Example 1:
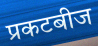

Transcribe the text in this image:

प्रकटबीज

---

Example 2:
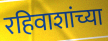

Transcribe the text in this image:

रहिवाशांच्या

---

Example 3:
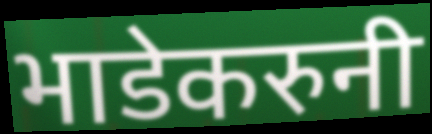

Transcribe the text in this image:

भाडेकरुनी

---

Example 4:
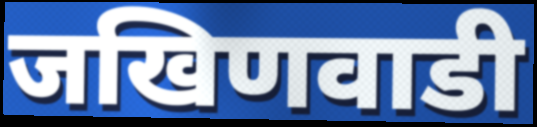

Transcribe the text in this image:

जखिणवाडी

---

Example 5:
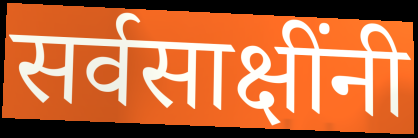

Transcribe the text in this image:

सर्वसाक्षींनी